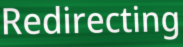
Redirecting